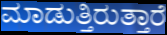
ಮಾಡುತ್ತಿರುತ್ತಾರೆ